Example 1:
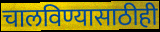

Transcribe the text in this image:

चालविण्यासाठीही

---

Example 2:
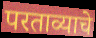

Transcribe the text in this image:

परताव्याचे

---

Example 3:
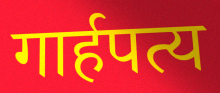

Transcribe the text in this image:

गार्हपत्य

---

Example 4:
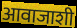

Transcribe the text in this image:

आवाजाशी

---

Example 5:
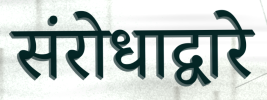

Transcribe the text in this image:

संरोधाद्वारे